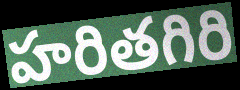
హరితగిరి